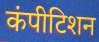
कंपीटिशन